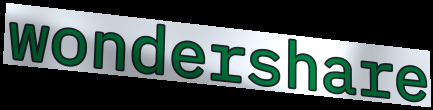
wondershare